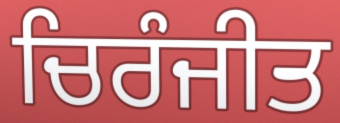
ਚਿਰੰਜੀਤ